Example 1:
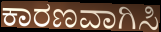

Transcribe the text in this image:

ಕಾರಣವಾಗಿಸಿ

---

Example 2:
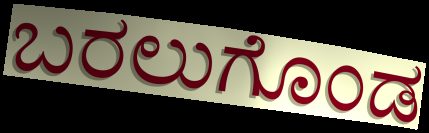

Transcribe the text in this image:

ಬರಲುಗೊಂಡ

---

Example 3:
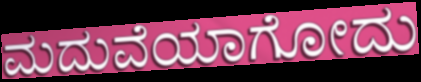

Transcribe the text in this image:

ಮದುವೆಯಾಗೋದು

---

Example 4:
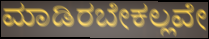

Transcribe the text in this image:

ಮಾಡಿರಬೇಕಲ್ಲವೇ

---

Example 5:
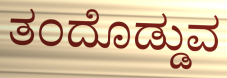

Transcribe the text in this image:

ತಂದೊಡ್ಡುವ